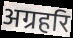
अग्रहरि